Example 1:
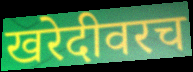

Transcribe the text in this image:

खरेदीवरच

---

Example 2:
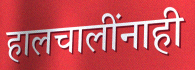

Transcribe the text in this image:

हालचालींनाही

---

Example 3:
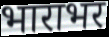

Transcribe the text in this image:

भाराभर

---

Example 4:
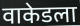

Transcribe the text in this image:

वाकेडला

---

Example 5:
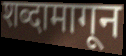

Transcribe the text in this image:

शब्दामागून